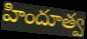
హిందూత్వ